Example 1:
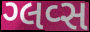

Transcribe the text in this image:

ગ્લવ્સ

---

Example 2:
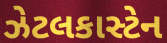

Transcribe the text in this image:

ઝેટલકાસ્ટેન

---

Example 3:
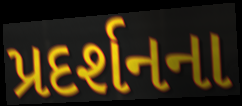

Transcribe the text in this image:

પ્રદર્શનના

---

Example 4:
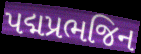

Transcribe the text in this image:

પદ્મપ્રભજિન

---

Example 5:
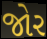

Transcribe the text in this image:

જોર